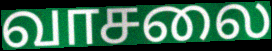
வாசலை